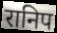
रानिप